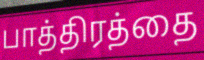
பாத்திரத்தை